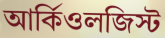
আর্কিওলজিস্ট